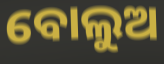
ବୋଲୁଅ